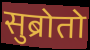
सुब्रोतो